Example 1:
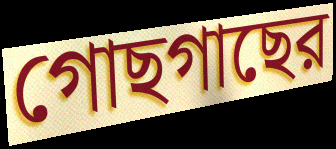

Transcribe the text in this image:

গোছগাছের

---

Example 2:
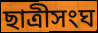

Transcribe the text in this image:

ছাত্রীসংঘ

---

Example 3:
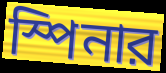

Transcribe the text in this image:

স্পিনার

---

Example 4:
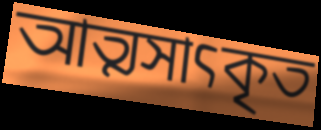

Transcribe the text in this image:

আত্মসাৎকৃত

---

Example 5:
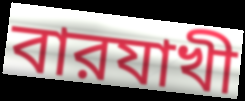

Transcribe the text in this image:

বারযাখী